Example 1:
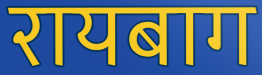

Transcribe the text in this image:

रायबाग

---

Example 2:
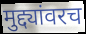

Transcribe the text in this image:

मुद्द्यांवरच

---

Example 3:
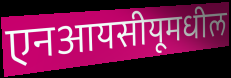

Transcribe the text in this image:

एनआयसीयूमधील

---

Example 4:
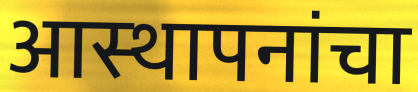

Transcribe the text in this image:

आस्थापनांचा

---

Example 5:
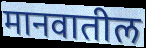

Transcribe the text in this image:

मानवातील